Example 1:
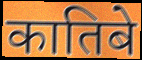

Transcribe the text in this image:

कातिबे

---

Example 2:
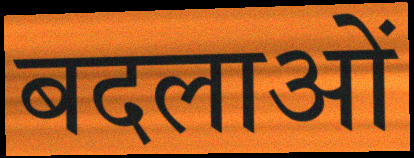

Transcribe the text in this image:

बदलाओं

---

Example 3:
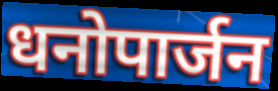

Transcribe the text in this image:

धनोपार्जन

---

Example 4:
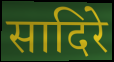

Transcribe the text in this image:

सादिरे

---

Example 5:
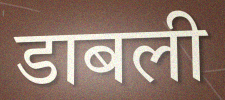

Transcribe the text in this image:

डाबली